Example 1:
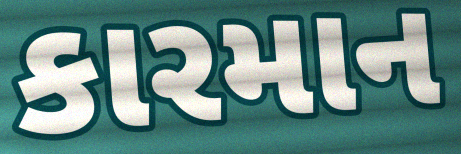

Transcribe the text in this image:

કારમાન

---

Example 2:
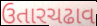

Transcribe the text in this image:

ઉતારચઢાવ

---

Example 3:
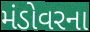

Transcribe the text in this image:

મંડોવરના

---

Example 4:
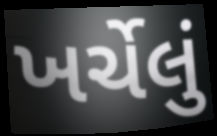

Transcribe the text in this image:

ખર્ચેલું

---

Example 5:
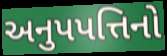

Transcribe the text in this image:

અનુપપત્તિનો